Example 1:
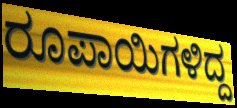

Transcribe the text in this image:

ರೂಪಾಯಿಗಳಿದ್ದ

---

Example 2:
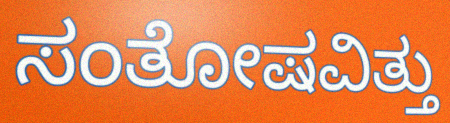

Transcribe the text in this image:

ಸಂತೋಷವಿತ್ತು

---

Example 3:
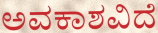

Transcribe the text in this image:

ಅವಕಾಶವಿದೆ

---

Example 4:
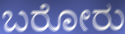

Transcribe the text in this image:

ಬರೋರು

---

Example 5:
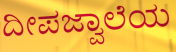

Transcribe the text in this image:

ದೀಪಜ್ವಾಲೆಯ